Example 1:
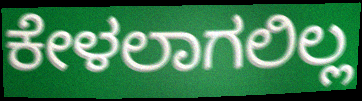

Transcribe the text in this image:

ಕೇಳಲಾಗಲಿಲ್ಲ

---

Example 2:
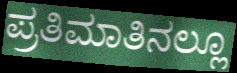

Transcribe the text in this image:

ಪ್ರತಿಮಾತಿನಲ್ಲೂ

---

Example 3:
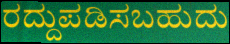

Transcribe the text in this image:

ರದ್ದುಪಡಿಸಬಹುದು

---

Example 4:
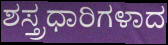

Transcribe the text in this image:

ಶಸ್ತ್ರಧಾರಿಗಳಾದ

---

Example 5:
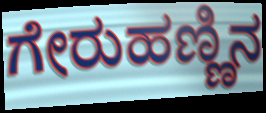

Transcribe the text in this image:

ಗೇರುಹಣ್ಣಿನ